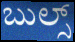
ಬುಲ್ಸ್